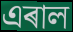
এৰাল